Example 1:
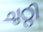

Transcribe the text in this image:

ചുറ്റി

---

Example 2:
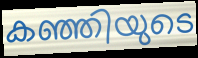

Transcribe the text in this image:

കഞ്ഞിയുടെ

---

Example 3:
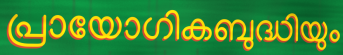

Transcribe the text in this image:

പ്രായോഗികബുദ്ധിയും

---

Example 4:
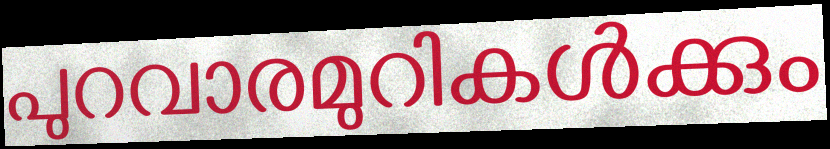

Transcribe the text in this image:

പുറവാരമുറികൾക്കും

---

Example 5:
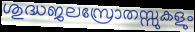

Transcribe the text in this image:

ശുദ്ധജലസ്രോതസ്സുകളും